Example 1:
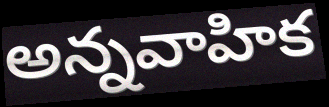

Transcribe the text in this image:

అన్నవాహిక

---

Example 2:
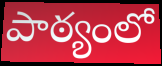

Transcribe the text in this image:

పాఠ్యంలో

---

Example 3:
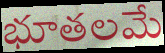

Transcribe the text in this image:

భూతలమే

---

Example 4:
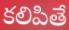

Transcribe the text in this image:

కలిపితే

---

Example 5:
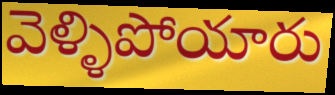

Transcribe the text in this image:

వెళ్ళిపోయారు